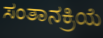
ಸಂತಾನಕ್ರಿಯೆ